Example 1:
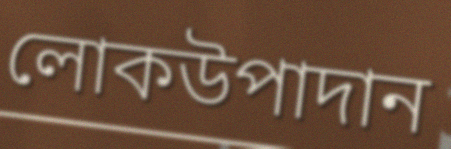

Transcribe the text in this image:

লোকউপাদান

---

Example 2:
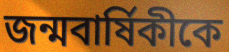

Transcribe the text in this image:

জন্মবার্ষিকীকে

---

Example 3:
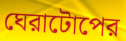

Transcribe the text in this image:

ঘেরাটোপের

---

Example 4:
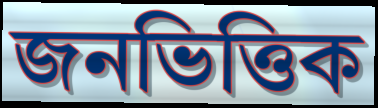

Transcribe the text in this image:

জনভিত্তিক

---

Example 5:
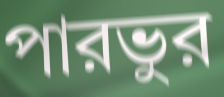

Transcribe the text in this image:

পারভুর